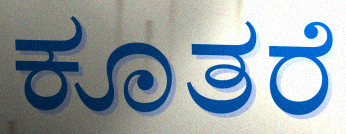
ಕೂತರೆ